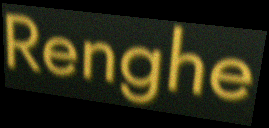
Renghe